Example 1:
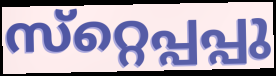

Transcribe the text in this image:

സ്‌റ്റെപ്പപ്പു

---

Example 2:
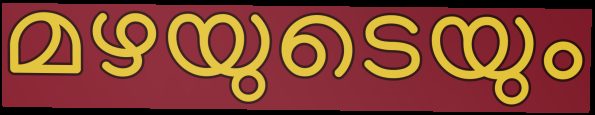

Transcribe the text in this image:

മഴയുടെയും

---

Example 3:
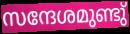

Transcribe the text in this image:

സന്ദേശമുണ്ടു്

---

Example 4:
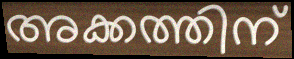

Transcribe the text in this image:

അക്കത്തിന്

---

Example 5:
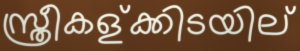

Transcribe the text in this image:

സ്ത്രീകള്ക്കിടയില്